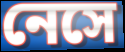
নেসে